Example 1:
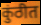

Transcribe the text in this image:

कुंठीत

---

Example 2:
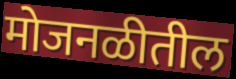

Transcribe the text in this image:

मोजनळीतील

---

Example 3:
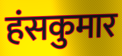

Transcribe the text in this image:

हंसकुमार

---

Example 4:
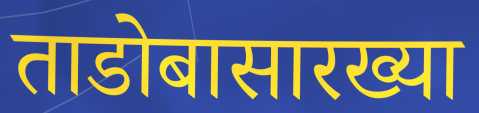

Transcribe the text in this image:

ताडोबासारख्या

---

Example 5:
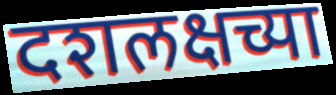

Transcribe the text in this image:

दशलक्षच्या